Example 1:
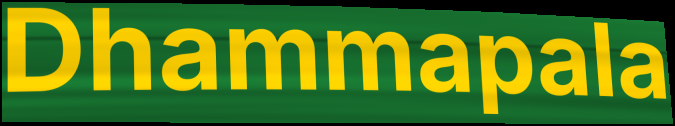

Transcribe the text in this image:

Dhammapala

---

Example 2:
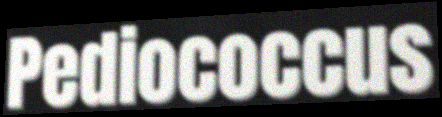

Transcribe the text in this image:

Pediococcus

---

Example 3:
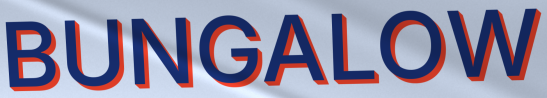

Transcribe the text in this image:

BUNGALOW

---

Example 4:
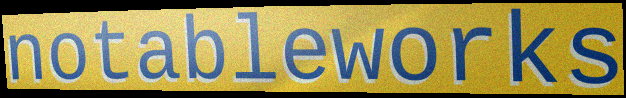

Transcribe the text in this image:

notableworks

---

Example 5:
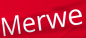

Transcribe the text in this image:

Merwe